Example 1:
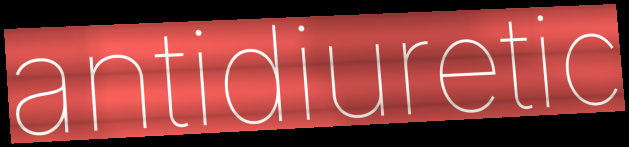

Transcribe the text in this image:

antidiuretic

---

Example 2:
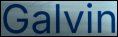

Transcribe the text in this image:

Galvin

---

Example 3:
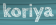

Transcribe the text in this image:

koriya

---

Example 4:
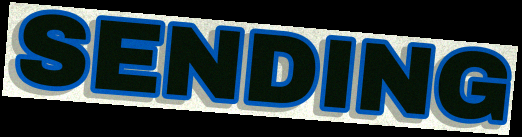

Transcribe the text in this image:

SENDING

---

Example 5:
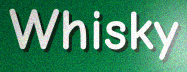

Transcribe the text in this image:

Whisky